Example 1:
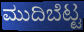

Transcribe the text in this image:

ಮುದಿಬೆಟ್ಟ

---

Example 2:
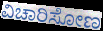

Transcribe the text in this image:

ವಿಚಾರಿಸೋಣ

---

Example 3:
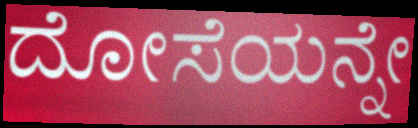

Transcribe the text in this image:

ದೋಸೆಯನ್ನೇ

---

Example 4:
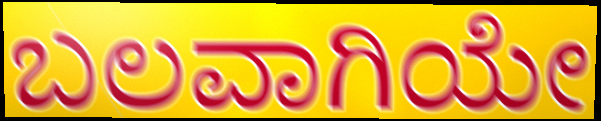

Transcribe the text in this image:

ಬಲವಾಗಿಯೇ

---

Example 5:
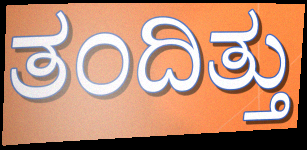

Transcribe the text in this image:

ತಂದಿತ್ತು